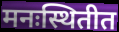
मनःस्थितीत